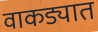
वाकड्यात